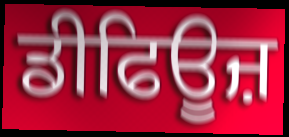
ਡੀਫਿਊਜ਼